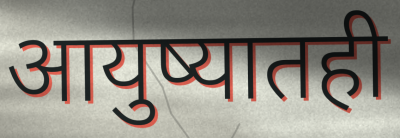
आयुष्यातही